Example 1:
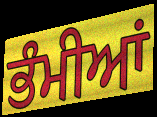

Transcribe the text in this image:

ਭੰਮੀਆਂ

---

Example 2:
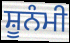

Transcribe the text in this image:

ਸ਼ੂਨੰਮੀ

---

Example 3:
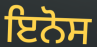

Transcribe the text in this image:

ਇਨੋਸ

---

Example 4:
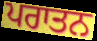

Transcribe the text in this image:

ਪਰਾਤਨ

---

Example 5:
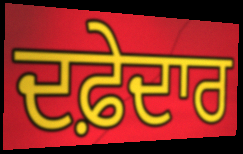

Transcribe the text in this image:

ਦਫ਼ੇਦਾਰ